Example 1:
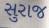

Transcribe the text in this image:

સુરાજ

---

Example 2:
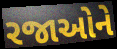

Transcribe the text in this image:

રજાઓને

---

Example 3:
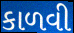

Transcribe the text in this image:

કાળવી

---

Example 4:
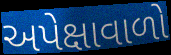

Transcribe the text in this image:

અપેક્ષાવાળો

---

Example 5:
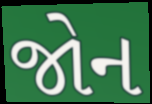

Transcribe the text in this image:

જોન